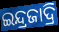
ଇନ୍ଦ୍ରଜାଦ୍ରି